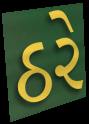
ઠરે